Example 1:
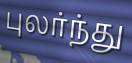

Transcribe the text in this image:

புலர்ந்து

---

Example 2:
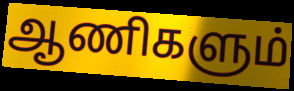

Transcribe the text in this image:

ஆணிகளும்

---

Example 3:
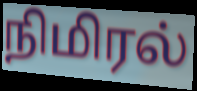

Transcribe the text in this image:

நிமிரல்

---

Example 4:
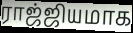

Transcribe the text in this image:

ராஜ்ஜியமாக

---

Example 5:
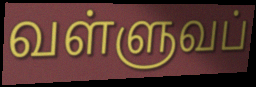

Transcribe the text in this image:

வள்ளுவப்